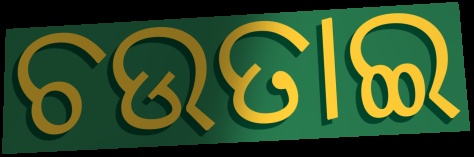
ଚଉତାଇ